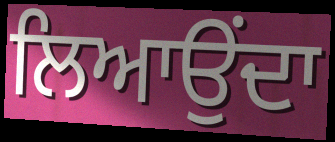
ਲਿਆਉਂਦਾ